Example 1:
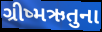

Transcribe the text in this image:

ગ્રીષ્મઋતુના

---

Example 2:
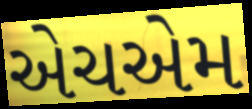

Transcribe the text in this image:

એચએમ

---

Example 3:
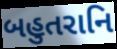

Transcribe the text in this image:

બહુતરાનિ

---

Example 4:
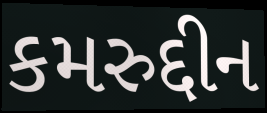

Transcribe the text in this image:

કમરુદ્દીન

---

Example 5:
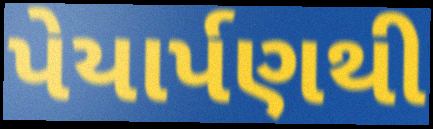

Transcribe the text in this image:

પેયાર્પણથી